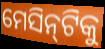
ମେସିନ୍‍ଟିକୁ